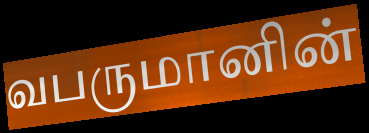
வபருமானின்